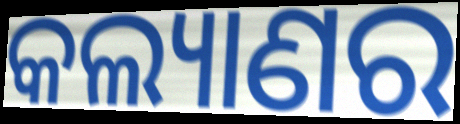
କଲ୍ୟାଣର